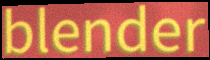
blender